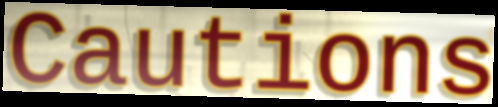
Cautions